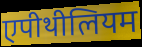
एपीथीलियम